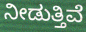
ನೀಡುತ್ತಿವೆ